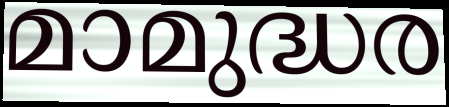
മാമുദ്ധര